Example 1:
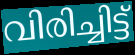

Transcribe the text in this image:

വിരിച്ചിട്ട്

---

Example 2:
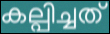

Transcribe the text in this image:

കല്പിച്ചത്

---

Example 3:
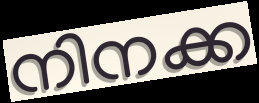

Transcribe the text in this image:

നിനക്ക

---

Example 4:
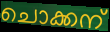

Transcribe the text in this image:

ചൊക്കന്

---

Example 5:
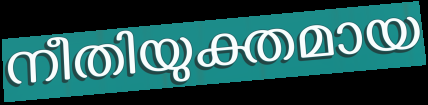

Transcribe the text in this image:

നീതിയുക്തമായ